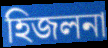
হিজলনা